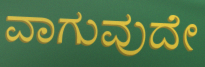
ವಾಗುವುದೇ